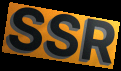
SSR